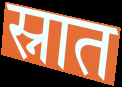
स्नात